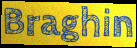
Braghin